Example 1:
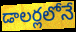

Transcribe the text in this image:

డాలర్లలోనే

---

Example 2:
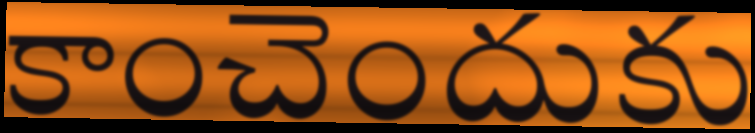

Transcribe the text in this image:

కాంచెందుకు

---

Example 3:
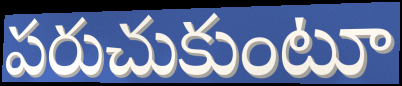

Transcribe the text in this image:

పరుచుకుంటూ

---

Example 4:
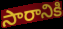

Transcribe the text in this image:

సారానికి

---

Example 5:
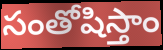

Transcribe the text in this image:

సంతోషిస్తాం